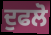
ਦੁਫਲੋ